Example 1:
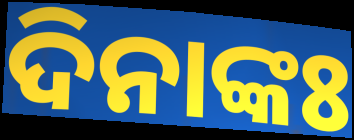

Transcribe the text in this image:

ଦିନାଙ୍କଃ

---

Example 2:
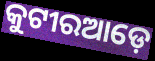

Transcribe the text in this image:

କୁଟୀରଆଡ଼େ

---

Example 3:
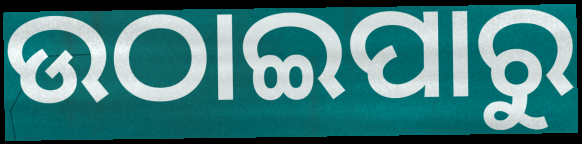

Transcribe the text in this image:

ଉଠାଇପାରୁ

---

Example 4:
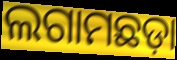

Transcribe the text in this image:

ଲଗାମଛଡ଼ା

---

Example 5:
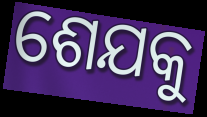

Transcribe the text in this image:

ଶେଯକୁ